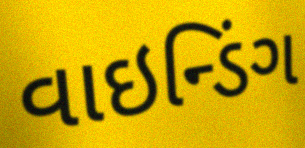
વાઇન્ડિંગ